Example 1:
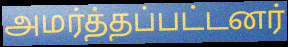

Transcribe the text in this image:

அமர்த்தப்பட்டனர்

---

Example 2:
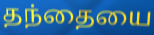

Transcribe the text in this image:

தந்தையை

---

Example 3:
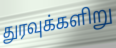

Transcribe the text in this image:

துரவுக்களிறு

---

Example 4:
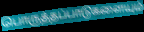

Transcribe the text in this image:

பொருத்தப்பாடுகளையும்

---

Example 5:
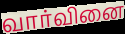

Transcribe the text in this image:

வார்வினை